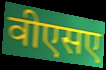
वीएसए